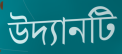
উদ্যানটি